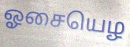
ஓசையெழ